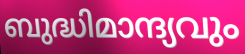
ബുദ്ധിമാന്ദ്യവും